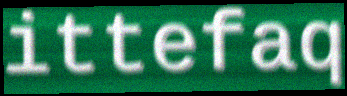
ittefaq